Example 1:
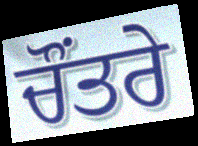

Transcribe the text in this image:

ਚੌਂਤਰੇ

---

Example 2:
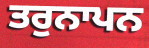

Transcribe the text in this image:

ਤਰੁਨਾਪਨ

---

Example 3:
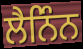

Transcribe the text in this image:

ਲੈਨਿੰਨ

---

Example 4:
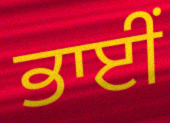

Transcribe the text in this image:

ਭਾਈੰ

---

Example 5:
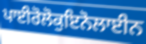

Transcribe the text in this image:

ਪਾਈਰੋਲੋਕੁਇਨੋਲਾਈਨ